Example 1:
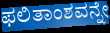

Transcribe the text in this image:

ಫಲಿತಾಂಶವನ್ನೇ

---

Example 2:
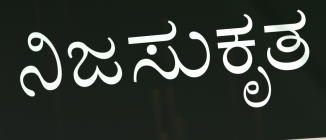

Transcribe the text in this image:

ನಿಜಸುಕೃತ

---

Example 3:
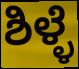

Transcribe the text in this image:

ಶಿಳ್ಳೆ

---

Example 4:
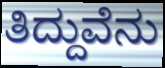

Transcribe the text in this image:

ತಿದ್ದುವೆನು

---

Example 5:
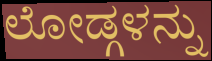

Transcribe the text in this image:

ಲೋಡ್ಗಳನ್ನು